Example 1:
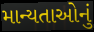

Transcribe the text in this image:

માન્યતાઓનું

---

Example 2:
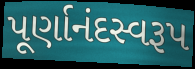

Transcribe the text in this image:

પૂર્ણાનંદસ્વરૂપ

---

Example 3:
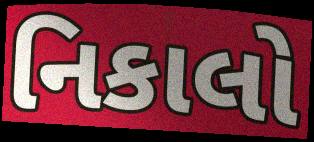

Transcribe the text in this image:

નિકાલો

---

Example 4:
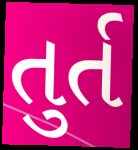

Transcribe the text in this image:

તુર્ત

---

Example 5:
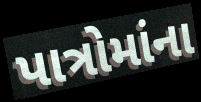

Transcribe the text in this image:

પાત્રોમાંના